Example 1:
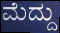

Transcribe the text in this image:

ಮೆದ್ದು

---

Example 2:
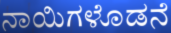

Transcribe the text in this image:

ನಾಯಿಗಳೊಡನೆ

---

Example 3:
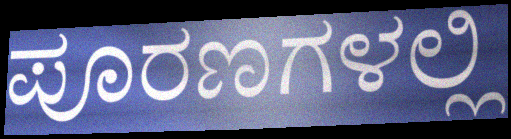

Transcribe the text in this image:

ಪೂರಣಗಳಲ್ಲಿ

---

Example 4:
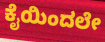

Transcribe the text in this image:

ಕೈಯಿಂದಲೇ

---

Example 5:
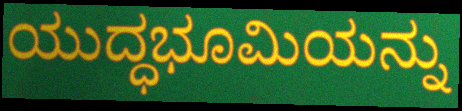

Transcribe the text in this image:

ಯುದ್ಧಭೂಮಿಯನ್ನು